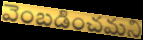
వెంబడించమని